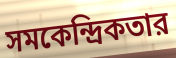
সমকেন্দ্রিকতার